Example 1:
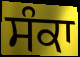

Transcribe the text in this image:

ਸੰਕਾ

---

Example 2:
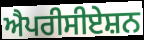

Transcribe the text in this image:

ਐਪਰੀਸੀਏਸ਼ਨ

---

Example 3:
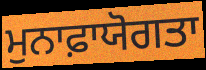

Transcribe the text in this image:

ਮੁਨਾਫ਼ਾਯੋਗਤਾ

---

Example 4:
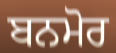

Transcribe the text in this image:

ਬਨਮੋਰ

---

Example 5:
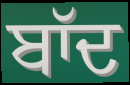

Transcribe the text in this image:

ਬਾੱਦ